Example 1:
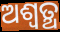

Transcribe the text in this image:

ଅଶ୍ଵତ୍ଥ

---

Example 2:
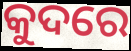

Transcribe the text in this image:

କୁଦରେ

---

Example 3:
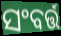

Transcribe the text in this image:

ସଂବର୍ତ୍ତ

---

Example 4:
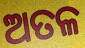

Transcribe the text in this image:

ଅତଳ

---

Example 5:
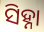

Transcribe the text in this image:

ସିହ୍ନା